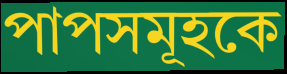
পাপসমূহকে